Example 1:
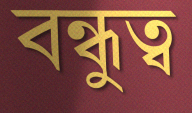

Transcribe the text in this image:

বন্ধুত্ব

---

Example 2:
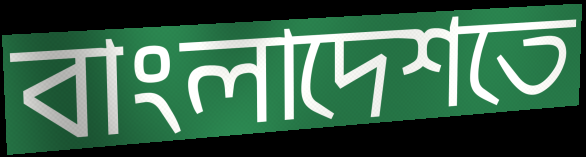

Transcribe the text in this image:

বাংলাদেশতে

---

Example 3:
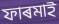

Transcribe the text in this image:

ফাৰমাই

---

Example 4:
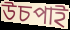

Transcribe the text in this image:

উচপাই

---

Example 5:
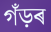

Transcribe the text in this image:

গঁড়ৰ